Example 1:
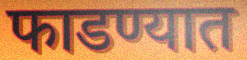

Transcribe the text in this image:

फाडण्यात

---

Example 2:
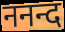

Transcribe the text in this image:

ननन्द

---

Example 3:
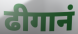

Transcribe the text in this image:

ढीगानं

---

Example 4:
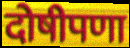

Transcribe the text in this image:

दोषीपणा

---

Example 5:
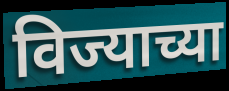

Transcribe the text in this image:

विज्याच्या